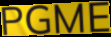
PGME